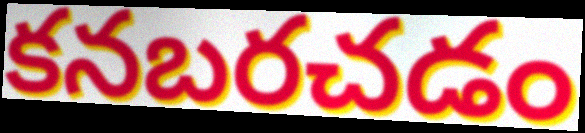
కనబరచడం